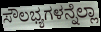
ಸೌಲಭ್ಯಗಳನ್ನೆಲ್ಲಾ